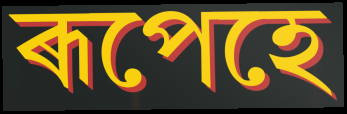
ৰূপেহে